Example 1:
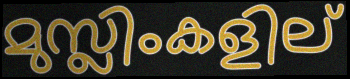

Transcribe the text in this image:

മുസ്ലിംകളില്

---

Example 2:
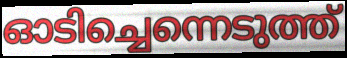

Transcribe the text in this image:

ഓടിച്ചെന്നെടുത്ത്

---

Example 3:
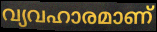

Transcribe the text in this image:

വ്യവഹാരമാണ്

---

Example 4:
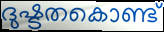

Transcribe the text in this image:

ദുഷ്ടതകൊണ്ട്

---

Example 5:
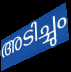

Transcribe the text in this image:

അടിച്ചും